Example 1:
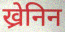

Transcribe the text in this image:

ख्रेनिन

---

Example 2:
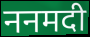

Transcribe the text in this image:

ननमदी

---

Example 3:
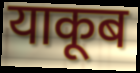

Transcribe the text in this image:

याकूब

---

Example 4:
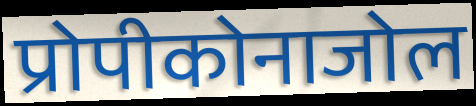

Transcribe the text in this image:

प्रोपीकोनाजोल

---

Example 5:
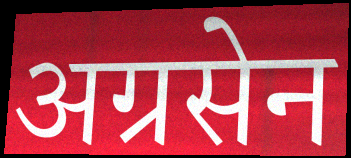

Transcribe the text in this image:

अग्रसेन